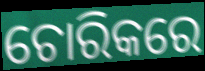
ଚୋରିକରେ